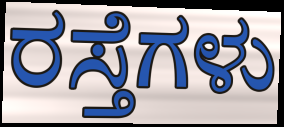
ರಸ್ತೆಗಳು